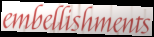
embellishments